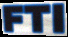
FTI